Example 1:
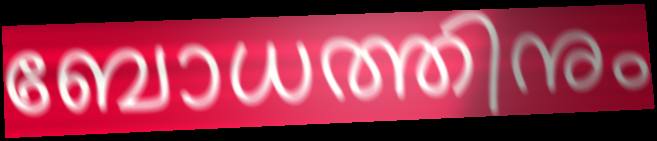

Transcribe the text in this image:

ബോധത്തിനും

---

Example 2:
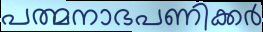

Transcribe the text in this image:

പത്മനാഭപണിക്കർ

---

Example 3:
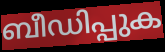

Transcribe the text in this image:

ബീഡിപ്പുക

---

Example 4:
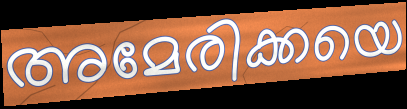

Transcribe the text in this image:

അമേരിക്കയെ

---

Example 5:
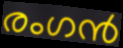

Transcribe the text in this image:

രംഗൻ